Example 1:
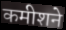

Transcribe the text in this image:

कमीशने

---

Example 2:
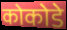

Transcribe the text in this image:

कोकोडे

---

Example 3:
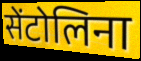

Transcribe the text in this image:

सेंटोलिना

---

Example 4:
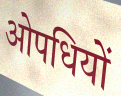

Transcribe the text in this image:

ओपधियों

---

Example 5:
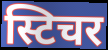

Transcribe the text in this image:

स्टिचर